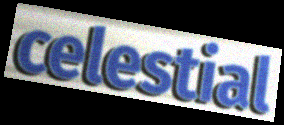
celestial